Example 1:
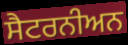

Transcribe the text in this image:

ਸੈਟਰਨੀਅਨ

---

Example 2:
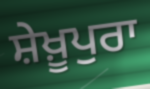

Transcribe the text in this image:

ਸ਼ੇਖ਼ੂਪੁਰਾ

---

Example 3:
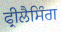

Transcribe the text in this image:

ਫ੍ਰੀਲੈਸਿੰਗ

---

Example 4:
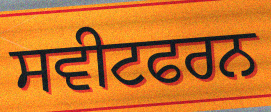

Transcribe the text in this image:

ਸਵੀਟਫਰਨ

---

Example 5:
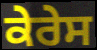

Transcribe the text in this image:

ਕੇਰੇਸ